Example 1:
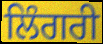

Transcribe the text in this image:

ਲਿੰਗਰੀ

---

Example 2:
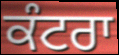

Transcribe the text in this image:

ਕੰਟਰਾ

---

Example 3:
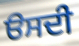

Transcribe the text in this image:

ੳਸਦੀ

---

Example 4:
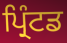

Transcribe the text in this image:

ਪ੍ਰਿੰਟਡ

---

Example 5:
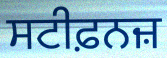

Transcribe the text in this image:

ਸਟੀਫ਼ਨਜ਼